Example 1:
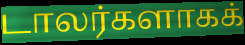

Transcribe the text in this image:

டாலர்களாகக்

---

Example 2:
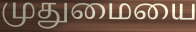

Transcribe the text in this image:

முதுமையை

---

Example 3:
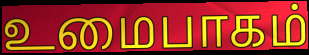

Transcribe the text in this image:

உமைபாகம்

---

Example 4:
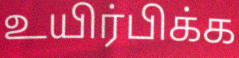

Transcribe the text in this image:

உயிர்பிக்க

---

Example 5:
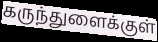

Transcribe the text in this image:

கருந்துளைக்குள்